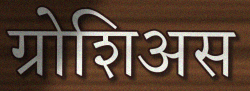
ग्रोशिअस